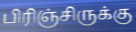
பிரிஞ்சிருக்கு